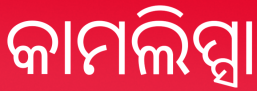
କାମଲିପ୍ସା